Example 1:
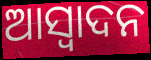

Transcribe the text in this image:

ଆସ୍ଵାଦନ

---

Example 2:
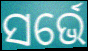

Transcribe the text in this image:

ସର୍ଭେ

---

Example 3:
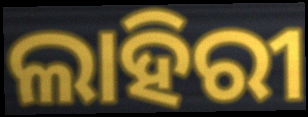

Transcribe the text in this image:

ଲାହିରୀ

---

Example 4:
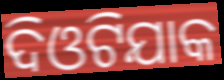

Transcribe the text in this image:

ଦିଓଟିଯାକ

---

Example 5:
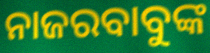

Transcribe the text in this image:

ନାଜରବାବୁଙ୍କ